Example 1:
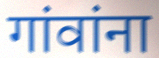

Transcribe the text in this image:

गांवांना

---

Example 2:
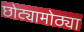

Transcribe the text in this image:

छोट्यामोठ्या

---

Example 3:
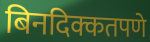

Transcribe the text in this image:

बिनदिक्कतपणे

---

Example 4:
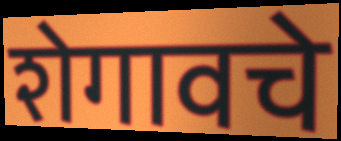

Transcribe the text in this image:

शेगावचे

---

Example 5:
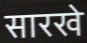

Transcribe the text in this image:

सारखे